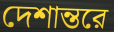
দেশান্তরে